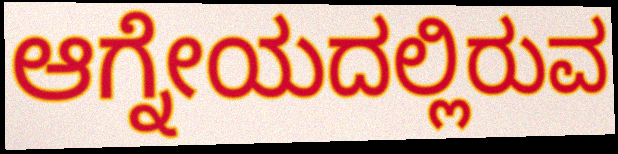
ಆಗ್ನೇಯದಲ್ಲಿರುವ